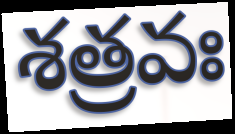
శత్రవః